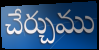
చేర్చుము